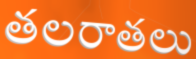
తలరాతలు